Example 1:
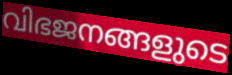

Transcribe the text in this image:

വിഭജനങ്ങളുടെ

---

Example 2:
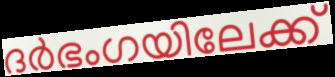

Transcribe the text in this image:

ദർഭംഗയിലേക്ക്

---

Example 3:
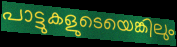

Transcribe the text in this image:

പാട്ടുകളുടെയെങ്കിലും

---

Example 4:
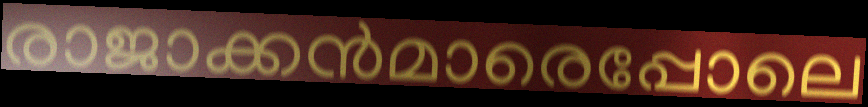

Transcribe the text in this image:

രാജാക്കൻമാരെപ്പോലെ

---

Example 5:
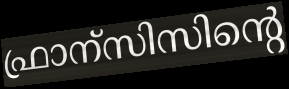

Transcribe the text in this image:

ഫ്രാന്സിസിന്റെ